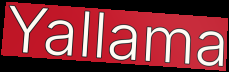
Yallama